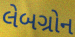
લેબગ્રોન